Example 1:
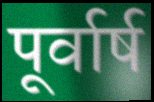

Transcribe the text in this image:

पूर्वार्ष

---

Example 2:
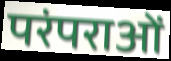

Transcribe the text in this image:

परंपराओं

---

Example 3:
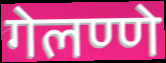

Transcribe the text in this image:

गेलण्णे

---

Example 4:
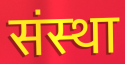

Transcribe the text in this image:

संस्था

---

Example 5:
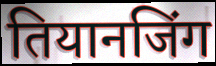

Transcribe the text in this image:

तियानजिंग